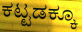
ಕಟ್ಟಡಕ್ಕೂ